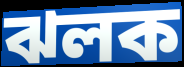
ঝলক